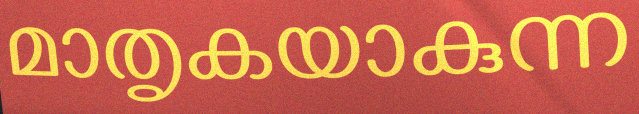
മാതൃകയാകുന്ന